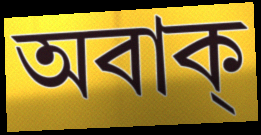
অবাক্